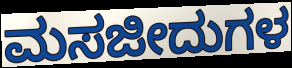
ಮಸಜೀದುಗಳ